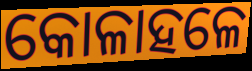
କୋଳାହଳେ